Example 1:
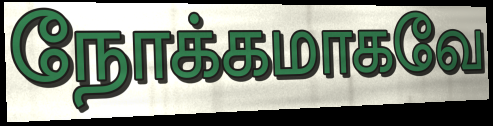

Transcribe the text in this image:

நோக்கமாகவே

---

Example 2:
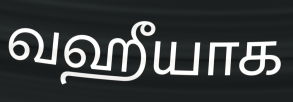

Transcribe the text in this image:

வஹீயாக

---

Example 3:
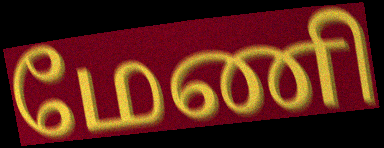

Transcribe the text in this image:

மேணி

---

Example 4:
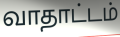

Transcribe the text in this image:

வாதாட்டம்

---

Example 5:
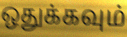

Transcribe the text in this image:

ஒதுக்கவும்